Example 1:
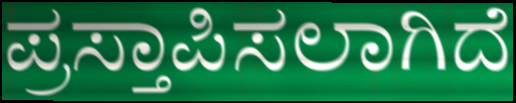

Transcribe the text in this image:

ಪ್ರಸ್ತಾಪಿಸಲಾಗಿದೆ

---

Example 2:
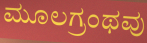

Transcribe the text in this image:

ಮೂಲಗ್ರಂಥವು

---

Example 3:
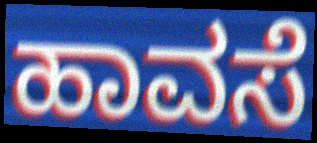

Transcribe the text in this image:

ಹಾವಸೆ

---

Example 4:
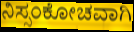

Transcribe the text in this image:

ನಿಸ್ಸಂಕೋಚವಾಗಿ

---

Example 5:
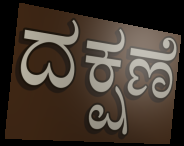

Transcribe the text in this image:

ದಕ್ಷಣೆ